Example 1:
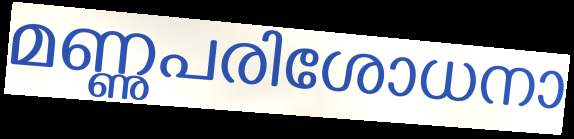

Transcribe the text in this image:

മണ്ണുപരിശോധനാ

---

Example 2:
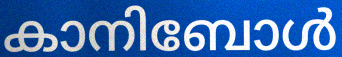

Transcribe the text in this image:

കാനിബോൾ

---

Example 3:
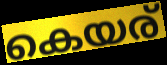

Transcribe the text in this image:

കെയര്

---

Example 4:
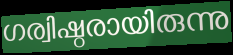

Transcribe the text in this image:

ഗര്വിഷ്ഠരായിരുന്നു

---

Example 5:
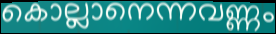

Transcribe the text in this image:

കൊല്ലാനെന്നവണ്ണം